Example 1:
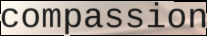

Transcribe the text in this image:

compassion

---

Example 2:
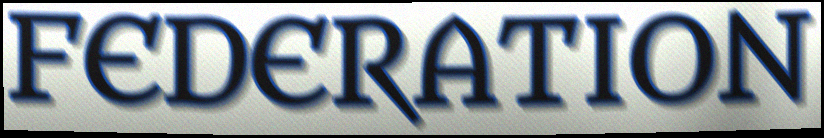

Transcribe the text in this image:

FEDERATION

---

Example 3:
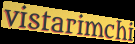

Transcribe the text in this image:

vistarimchi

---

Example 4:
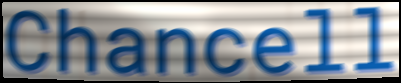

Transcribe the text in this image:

Chancell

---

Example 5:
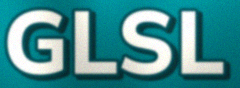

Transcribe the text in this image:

GLSL